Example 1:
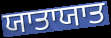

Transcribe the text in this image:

ਯਾਤਾਯਾਤ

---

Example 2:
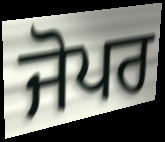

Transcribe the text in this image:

ਜੋਪਰ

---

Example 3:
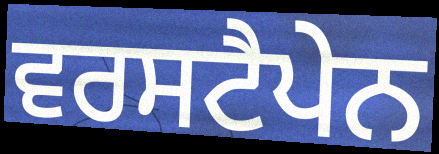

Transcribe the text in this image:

ਵਰਸਟੈਪੇਨ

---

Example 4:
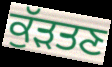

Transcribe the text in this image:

ਕੁੱੜਤਣ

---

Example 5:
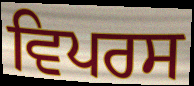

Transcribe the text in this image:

ਵਿਪਰਸ